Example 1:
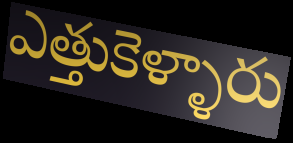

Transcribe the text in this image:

ఎత్తుకెళ్ళారు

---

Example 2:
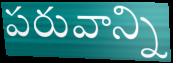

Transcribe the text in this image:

పరువాన్ని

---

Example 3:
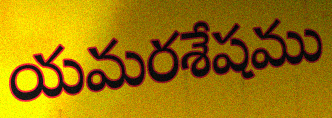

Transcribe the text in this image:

యమరశేషము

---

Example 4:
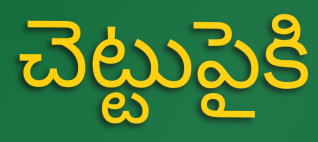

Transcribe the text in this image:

చెట్టుపైకి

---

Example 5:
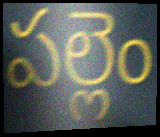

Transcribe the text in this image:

పల్లెం